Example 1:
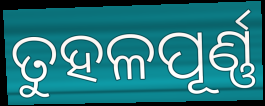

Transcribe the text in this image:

ତୁହଳପୂର୍ଣ୍ଣ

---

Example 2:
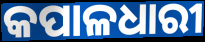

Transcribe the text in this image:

କପାଳଧାରୀ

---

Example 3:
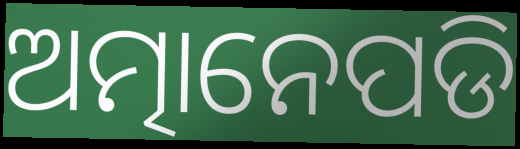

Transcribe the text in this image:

ଅତ୍ମାନେପଡି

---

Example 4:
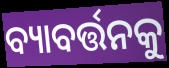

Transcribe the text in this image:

ବ୍ୟାବର୍ତ୍ତନକୁ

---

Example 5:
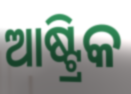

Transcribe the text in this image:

ଆଷ୍ଟ୍ରିକ